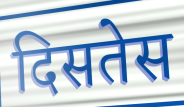
दिसतेस